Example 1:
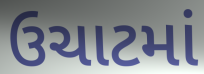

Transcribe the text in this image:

ઉચાટમાં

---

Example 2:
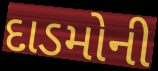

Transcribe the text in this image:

દાડમોની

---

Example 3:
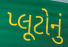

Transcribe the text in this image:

પ્લૂટોનું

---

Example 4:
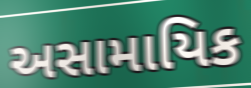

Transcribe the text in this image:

અસામાયિક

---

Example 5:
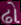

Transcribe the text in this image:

ઢો